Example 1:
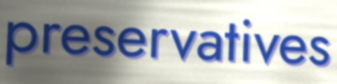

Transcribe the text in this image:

preservatives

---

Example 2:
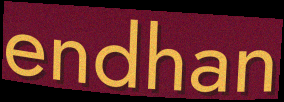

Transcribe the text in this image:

endhan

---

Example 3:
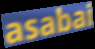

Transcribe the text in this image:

asabai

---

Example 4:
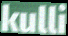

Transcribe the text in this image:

kulli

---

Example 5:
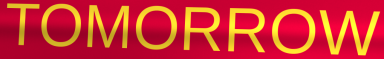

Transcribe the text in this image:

TOMORROW